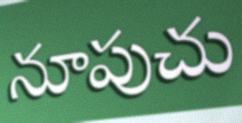
నూపుచు